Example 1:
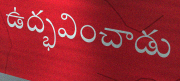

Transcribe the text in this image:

ఉద్భవించాడు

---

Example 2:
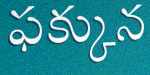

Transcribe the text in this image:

ఫక్కున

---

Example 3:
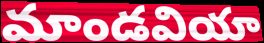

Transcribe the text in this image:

మాండవియా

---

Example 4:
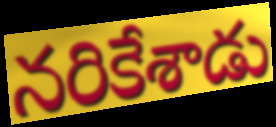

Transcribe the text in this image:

నరికేశాడు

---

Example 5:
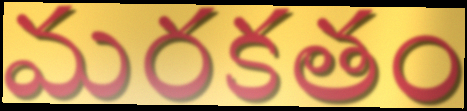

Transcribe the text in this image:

మరకతం